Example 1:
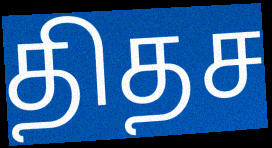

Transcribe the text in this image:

திதச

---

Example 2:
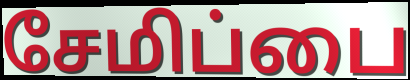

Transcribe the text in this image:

சேமிப்பை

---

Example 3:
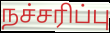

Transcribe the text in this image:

நச்சரிப்பு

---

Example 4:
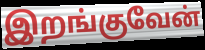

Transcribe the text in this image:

இறங்குவேன்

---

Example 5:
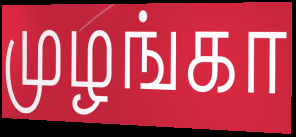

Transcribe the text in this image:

முழங்கா